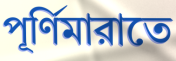
পূর্ণিমারাতে